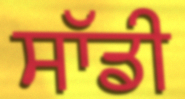
ਸਾੱਡੀ